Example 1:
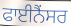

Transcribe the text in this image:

ਫਾਈਨੈਂਸਰ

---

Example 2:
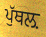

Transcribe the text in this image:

ਪੁੱਥਲ਼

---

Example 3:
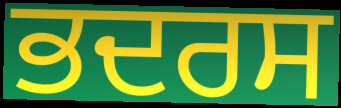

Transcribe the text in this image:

ਭਦਰਸ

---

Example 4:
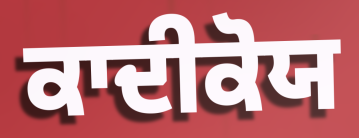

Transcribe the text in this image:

ਕਾਦੀਕੋਯ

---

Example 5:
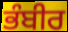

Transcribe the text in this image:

ਭੰਬੀਰ